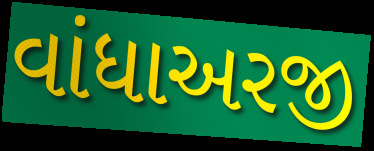
વાંધાઅરજી